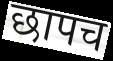
छापच